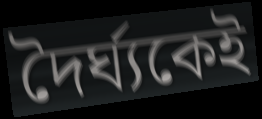
দৈর্ঘ্যকেই